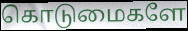
கொடுமைகளே